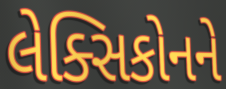
લેક્સિકોનને